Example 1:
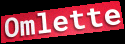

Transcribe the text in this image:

Omlette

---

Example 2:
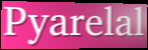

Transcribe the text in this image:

Pyarelal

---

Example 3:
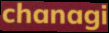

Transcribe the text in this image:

chanagi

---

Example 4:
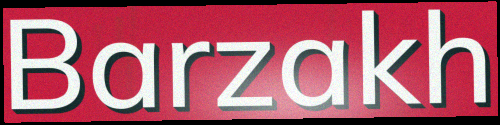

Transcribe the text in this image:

Barzakh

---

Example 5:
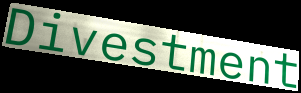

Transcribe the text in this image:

Divestment